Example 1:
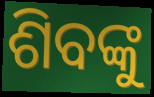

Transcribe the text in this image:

ଶିବଙ୍କୁ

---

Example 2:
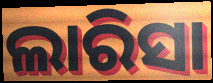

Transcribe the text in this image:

ଲାରିସା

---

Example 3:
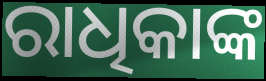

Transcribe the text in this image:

ରାଧିକାଙ୍କ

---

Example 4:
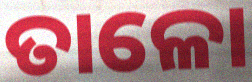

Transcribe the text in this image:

ତାଳୋ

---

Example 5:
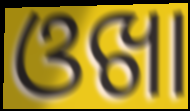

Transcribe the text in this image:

ଓଖା